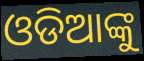
ଓଡିଆଙ୍କୁ